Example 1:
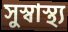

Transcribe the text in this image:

সুস্বাস্থ্য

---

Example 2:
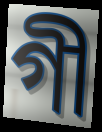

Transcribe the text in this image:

গী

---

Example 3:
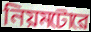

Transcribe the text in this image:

নিয়মটোৱে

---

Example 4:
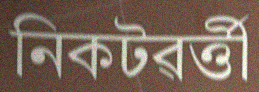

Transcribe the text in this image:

নিকটৱৰ্ত্তী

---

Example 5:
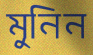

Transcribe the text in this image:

মুনিন